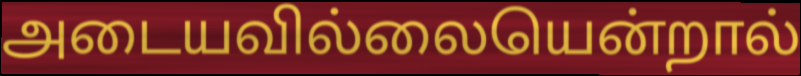
அடையவில்லையென்றால்